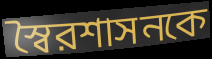
স্বৈরশাসনকে